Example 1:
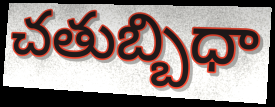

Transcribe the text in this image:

చతుబ్బిధా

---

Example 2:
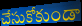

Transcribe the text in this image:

చేసుకోకుండా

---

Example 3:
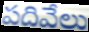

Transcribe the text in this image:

పదివేలు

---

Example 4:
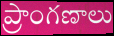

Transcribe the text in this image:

ప్రాంగణాలు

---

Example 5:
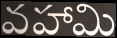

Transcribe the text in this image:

వహామి